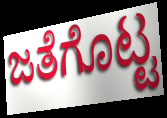
ಜತೆಗೊಟ್ಟ